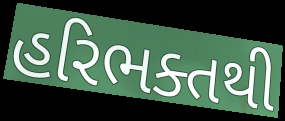
હરિભક્તથી